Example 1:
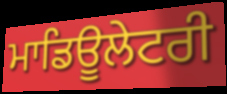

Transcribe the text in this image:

ਮਾਡਿਊਲੇਟਰੀ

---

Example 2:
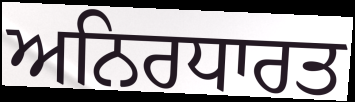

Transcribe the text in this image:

ਅਨਿਰਧਾਰਤ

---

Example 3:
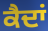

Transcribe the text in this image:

ਕੈਦਾਂ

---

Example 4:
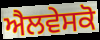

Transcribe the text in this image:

ਐਲਵੇਸਕੋ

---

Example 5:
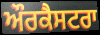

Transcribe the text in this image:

ਔਰਕੈਸਟਰਾ